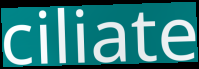
ciliate